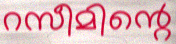
റസീമിന്റെ